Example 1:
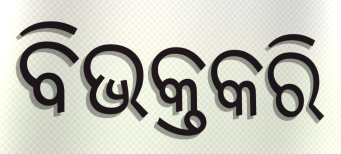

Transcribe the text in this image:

ବିଭକ୍ତକରି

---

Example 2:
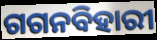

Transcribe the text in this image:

ଗଗନବିହାରୀ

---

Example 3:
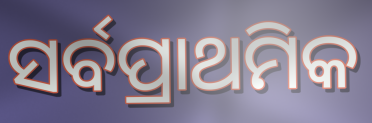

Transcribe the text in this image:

ସର୍ବପ୍ରାଥମିକ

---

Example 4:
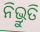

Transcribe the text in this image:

ନିଭ୍ରୁତି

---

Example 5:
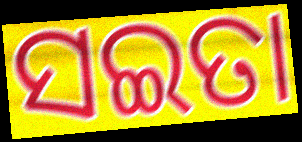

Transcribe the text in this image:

ସଇତା